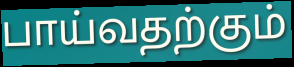
பாய்வதற்கும்